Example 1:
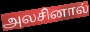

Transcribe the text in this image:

அலசினால்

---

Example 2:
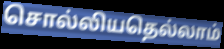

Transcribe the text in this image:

சொல்லியதெல்லாம்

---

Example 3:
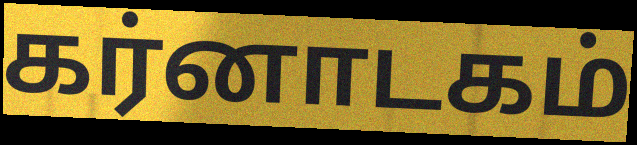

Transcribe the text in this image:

கர்னாடகம்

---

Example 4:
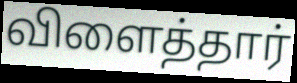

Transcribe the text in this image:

விளைத்தார்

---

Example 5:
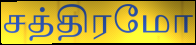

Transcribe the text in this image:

சத்திரமோ